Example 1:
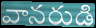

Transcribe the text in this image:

వానరుడి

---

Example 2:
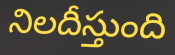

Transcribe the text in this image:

నిలదీస్తుంది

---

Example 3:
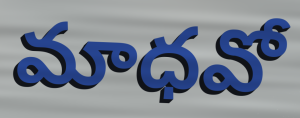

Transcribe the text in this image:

మాధవో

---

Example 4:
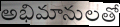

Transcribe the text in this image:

అభిమానులతో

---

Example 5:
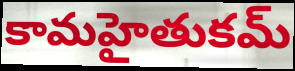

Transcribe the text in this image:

కామహైతుకమ్